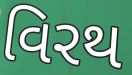
વિરથ